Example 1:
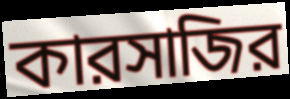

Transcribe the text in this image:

কারসাজির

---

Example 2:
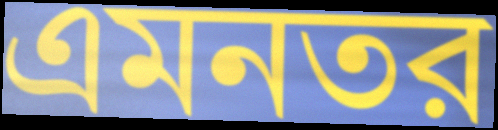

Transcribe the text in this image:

এমনতর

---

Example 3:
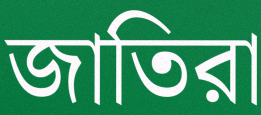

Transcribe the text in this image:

জাতিরা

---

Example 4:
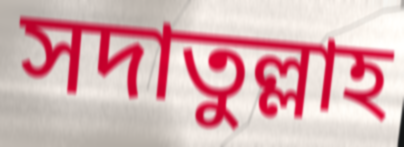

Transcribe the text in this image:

সদাতুল্লাহ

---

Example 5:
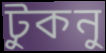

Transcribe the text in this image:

টুকনু